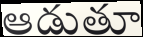
ఆడుతూ